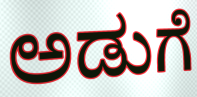
ಅಡುಗೆ